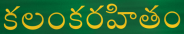
కలంకరహితం